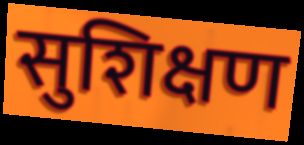
सुशिक्षण